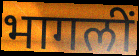
भागलीं